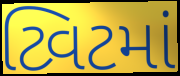
ટ્વિટમાં